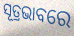
ସୂତ୍ରଭାବରେ